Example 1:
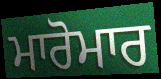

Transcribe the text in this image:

ਮਾਰੋਮਾਰ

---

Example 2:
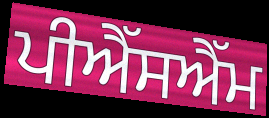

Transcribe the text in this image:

ਪੀਐੱਸਐੱਮ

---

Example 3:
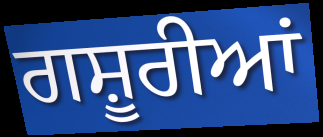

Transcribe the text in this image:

ਗਸ਼ੂਰੀਆਂ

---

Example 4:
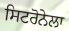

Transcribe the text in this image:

ਸਿਟਰੋਨੇਲਾ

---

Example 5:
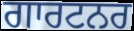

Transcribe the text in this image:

ਗਾਰਟਨਰ